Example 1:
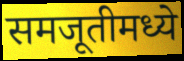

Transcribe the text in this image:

समजूतीमध्ये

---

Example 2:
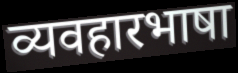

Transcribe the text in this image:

व्यवहारभाषा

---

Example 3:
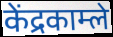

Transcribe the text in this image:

केंद्रकाम्ले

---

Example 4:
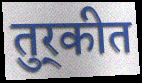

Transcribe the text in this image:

तुर्कीत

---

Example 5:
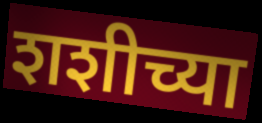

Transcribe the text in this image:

शशीच्या